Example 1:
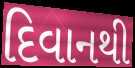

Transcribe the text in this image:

દિવાનથી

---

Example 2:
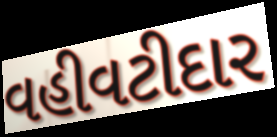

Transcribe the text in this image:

વહીવટીદાર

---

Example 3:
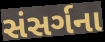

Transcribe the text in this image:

સંસર્ગના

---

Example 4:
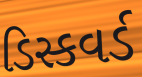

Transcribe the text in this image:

ડિસ્કવર્ડ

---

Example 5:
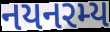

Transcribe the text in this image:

નયનરમ્ય